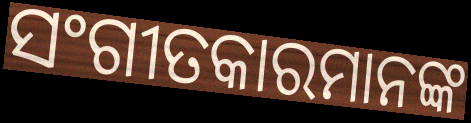
ସଂଗୀତକାରମାନଙ୍କ